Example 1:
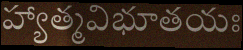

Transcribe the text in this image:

హ్యాత్మవిభూతయః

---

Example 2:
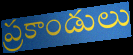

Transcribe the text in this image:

ప్రకాండులు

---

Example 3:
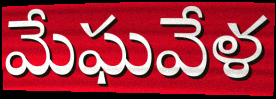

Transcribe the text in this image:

మేఘవేళ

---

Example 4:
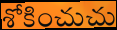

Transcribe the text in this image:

శోకించుచు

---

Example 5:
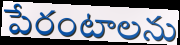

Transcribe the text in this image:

పేరంటాలను